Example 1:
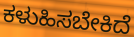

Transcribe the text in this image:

ಕಳುಹಿಸಬೇಕಿದೆ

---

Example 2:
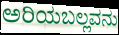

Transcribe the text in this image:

ಅರಿಯಬಲ್ಲವನು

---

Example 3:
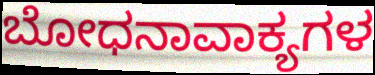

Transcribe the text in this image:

ಬೋಧನಾವಾಕ್ಯಗಳ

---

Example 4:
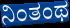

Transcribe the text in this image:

ನಿಂತಂಥ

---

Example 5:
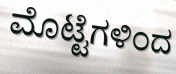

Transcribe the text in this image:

ಮೊಟ್ಟೆಗಳಿಂದ